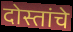
दोस्तांचे